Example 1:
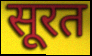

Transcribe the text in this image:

सूरत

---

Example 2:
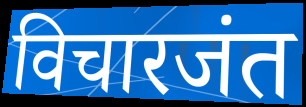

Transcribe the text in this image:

विचारजंत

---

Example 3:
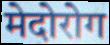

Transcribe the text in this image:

मेदोरोग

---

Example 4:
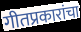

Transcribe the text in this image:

गीतप्रकारांचा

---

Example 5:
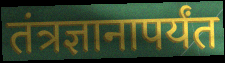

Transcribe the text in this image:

तंत्रज्ञानापर्यंत